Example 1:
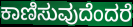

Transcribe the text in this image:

ಕಾಣಿಸುವುದೆಂದರೆ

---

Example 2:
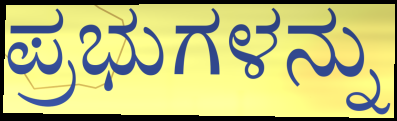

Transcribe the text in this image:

ಪ್ರಭುಗಳನ್ನು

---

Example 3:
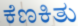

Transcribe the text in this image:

ಕೆಣಕಿತು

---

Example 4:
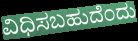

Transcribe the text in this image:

ವಿಧಿಸಬಹುದೆಂದು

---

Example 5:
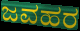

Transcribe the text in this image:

ಜವಹರ